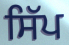
ਸਿੱਪ